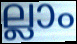
ല്ലാം